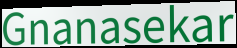
Gnanasekar